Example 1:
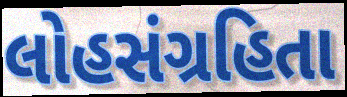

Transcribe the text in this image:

લોહસંગ્રહિતા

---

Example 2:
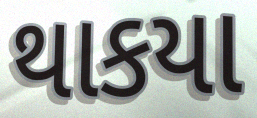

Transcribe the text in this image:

થાકયા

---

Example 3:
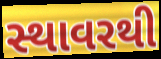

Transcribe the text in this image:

સ્થાવરથી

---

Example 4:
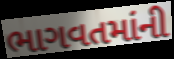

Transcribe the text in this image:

ભાગવતમાંની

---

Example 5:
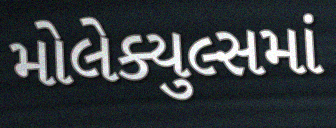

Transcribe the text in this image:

મોલેક્યુલ્સમાં